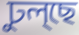
ঢুল্‌ছে